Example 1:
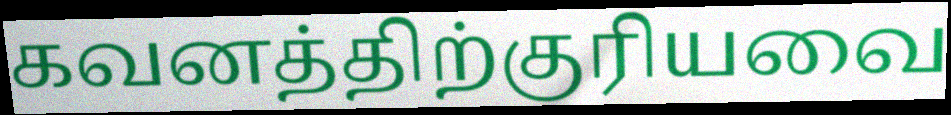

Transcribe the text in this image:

கவனத்திற்குரியவை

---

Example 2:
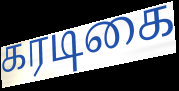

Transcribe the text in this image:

கரடிகை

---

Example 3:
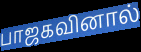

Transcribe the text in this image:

பாஜகவினால்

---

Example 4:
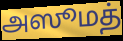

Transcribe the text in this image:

அஸூமத்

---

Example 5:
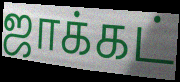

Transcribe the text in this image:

ஜாக்கட்